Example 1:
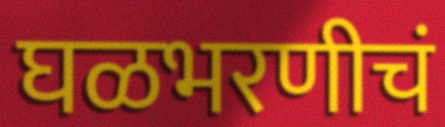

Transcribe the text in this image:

घळभरणीचं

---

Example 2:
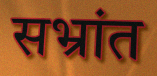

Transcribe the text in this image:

सभ्रांत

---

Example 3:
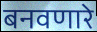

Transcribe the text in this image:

बनवणारे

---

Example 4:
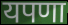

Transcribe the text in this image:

यपणा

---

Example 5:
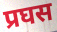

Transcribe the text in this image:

प्रघस